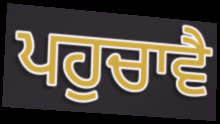
ਪਹੁਚਾਵੈ